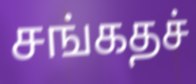
சங்கதச்